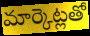
మార్కెట్లతో